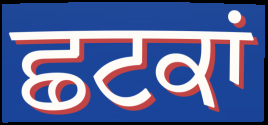
ਛਟਕਾਂ